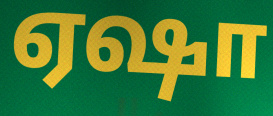
ஏஷா